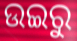
ଉଇରୁ